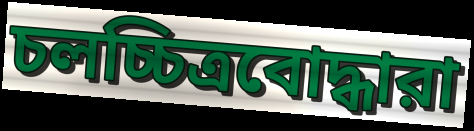
চলচ্চিত্রবোদ্ধারা